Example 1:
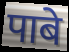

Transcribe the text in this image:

पाबे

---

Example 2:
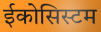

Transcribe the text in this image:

ईकोसिस्‍टम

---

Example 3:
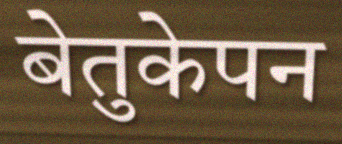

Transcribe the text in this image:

बेतुकेपन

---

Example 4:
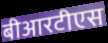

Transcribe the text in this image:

बीआरटीएस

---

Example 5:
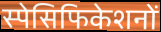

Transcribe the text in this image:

स्पेसिफिकेशनों